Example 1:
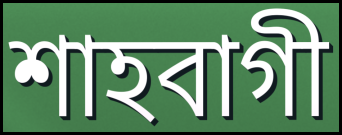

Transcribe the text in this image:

শাহবাগী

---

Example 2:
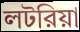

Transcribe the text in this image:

লটরিয়া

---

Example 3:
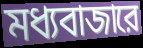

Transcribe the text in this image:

মধ্যবাজারে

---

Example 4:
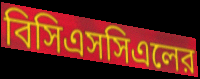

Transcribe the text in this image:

বিসিএসসিএলের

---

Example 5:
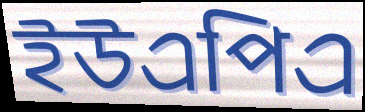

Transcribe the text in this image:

ইউএপিএ